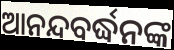
ଆନନ୍ଦବର୍ଦ୍ଧନଙ୍କ